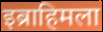
इब्राहिमला